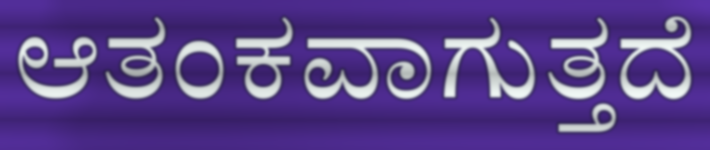
ಆತಂಕವಾಗುತ್ತದೆ